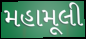
મહામૂલી